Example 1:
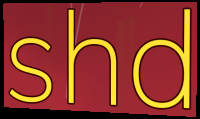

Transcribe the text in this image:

shd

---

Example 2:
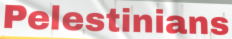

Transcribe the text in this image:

Pelestinians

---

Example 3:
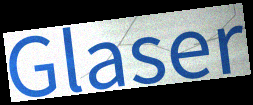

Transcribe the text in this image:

Glaser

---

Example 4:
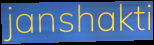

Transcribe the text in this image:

janshakti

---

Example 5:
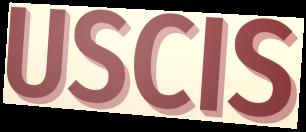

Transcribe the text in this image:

USCIS